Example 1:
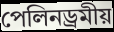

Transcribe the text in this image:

পেলিনড্ৰমীয়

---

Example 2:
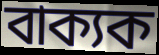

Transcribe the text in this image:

বাক্যক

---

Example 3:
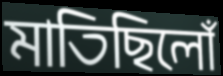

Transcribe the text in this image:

মাতিছিলোঁ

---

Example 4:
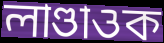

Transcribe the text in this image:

লাণ্ডাওক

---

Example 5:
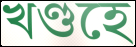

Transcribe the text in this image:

খণ্ডহে